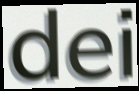
dei